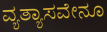
ವ್ಯತ್ಯಾಸವೇನೂ